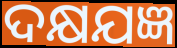
ଦକ୍ଷଯଜ୍ଞ